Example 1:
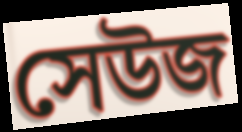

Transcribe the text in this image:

সেউজ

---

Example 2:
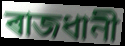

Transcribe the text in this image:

ৰাজধানী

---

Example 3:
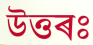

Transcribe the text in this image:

উত্তৰঃ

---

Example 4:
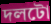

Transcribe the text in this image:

দলটো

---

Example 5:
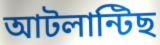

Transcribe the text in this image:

আটলান্টিছ